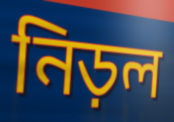
নিড়ল